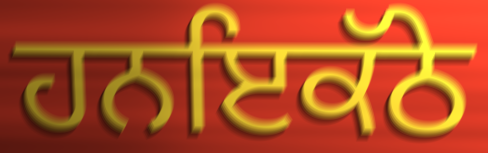
ਹਨਇਕੱਠੇ